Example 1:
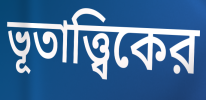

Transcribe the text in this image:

ভূতাত্ত্বিকের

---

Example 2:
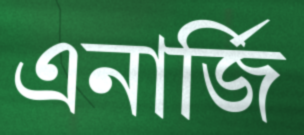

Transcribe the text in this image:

এনার্জি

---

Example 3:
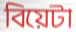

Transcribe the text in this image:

বিয়েটা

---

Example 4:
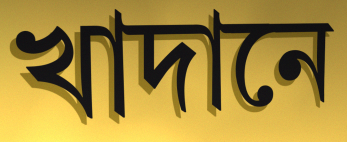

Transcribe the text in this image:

খাদানে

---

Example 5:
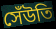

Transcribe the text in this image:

সেঁউতি